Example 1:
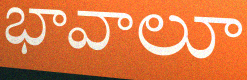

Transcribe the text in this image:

భావాలూ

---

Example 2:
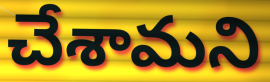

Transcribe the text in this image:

చేశామని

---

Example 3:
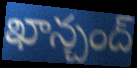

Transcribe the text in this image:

ఖాన్చంద్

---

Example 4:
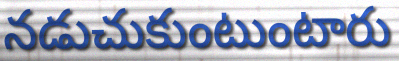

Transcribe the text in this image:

నడుచుకుంటుంటారు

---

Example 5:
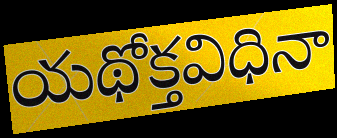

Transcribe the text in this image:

యథోక్తవిధినా